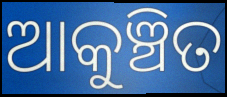
ଆକୁଞ୍ଚିତ